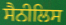
ਸੈਨੀਲਿਸ